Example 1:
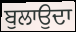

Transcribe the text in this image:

ਬੁਲਾਉਦਾ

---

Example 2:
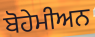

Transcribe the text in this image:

ਬੋਹੇਮੀਅਨ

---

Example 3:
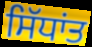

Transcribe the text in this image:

ਸਿੱਧਾਂਤ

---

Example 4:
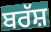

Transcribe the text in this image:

ਬਰੱਸ਼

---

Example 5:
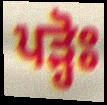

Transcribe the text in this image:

ਪੜ੍ਹੋਃ